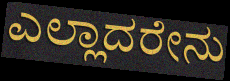
ಎಲ್ಲಾದರೇನು